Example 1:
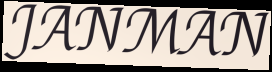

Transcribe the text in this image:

JANMAN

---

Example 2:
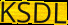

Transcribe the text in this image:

KSDL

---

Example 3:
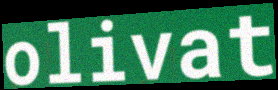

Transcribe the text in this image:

olivat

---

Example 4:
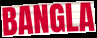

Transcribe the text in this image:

BANGLA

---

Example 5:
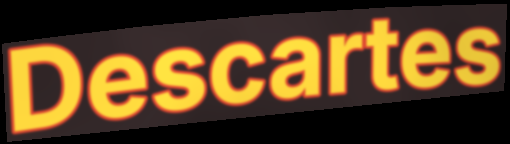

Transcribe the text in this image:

Descartes